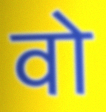
वो